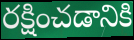
రక్షించడానికి